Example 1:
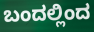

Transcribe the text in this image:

ಬಂದಲ್ಲಿಂದ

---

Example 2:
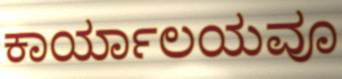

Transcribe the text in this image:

ಕಾರ್ಯಾಲಯವೂ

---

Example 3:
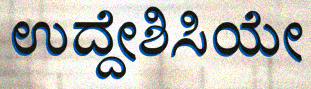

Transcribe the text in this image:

ಉದ್ದೇಶಿಸಿಯೇ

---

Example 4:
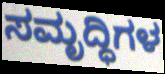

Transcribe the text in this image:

ಸಮೃದ್ಧಿಗಳ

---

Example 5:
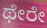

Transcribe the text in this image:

ಥೇರೇ